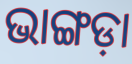
ଭାଙ୍ଗଡ଼ା